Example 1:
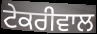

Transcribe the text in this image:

ਟੇਕਰੀਵਾਲ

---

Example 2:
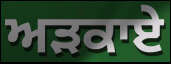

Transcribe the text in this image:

ਅੜਕਾਏ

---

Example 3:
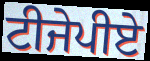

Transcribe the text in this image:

ਟੀਜੇਪੀਏ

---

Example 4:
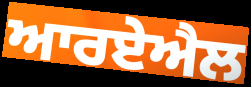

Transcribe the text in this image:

ਆਰਏਐਲ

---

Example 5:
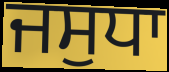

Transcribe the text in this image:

ਜਸੁਧਾ